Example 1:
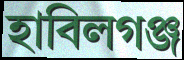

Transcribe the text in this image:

হাবিলগঞ্জ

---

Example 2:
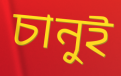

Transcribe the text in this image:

চানুই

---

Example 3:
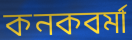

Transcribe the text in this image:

কনকবর্মা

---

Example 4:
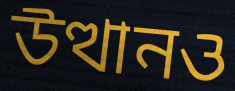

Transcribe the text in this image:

উত্থানও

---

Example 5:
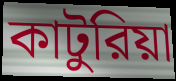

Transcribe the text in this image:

কাটুরিয়া